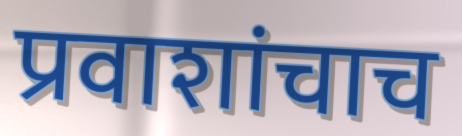
प्रवाशांचाच